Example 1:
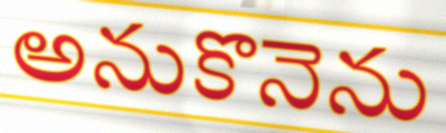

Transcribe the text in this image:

అనుకొనెను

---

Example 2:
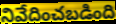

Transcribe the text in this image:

నివేదించబడింది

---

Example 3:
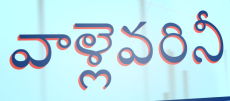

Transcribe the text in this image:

వాళ్లెవరినీ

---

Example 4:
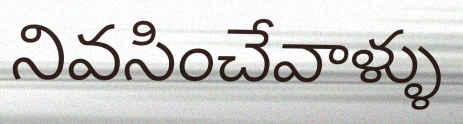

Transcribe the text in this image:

నివసించేవాళ్ళు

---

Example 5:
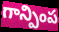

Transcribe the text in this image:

గాన్పింప